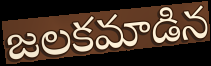
జలకమాడిన